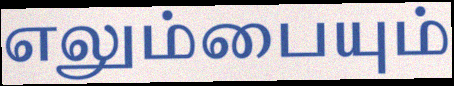
எலும்பையும்